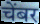
चेंबर